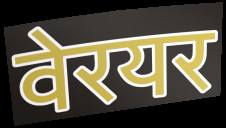
वेरयर